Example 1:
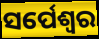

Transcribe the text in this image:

ସର୍ପେଶ୍ଵର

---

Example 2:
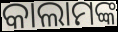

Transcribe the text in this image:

କାଲାମଙ୍କ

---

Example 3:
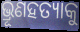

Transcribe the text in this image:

ଭ୍ରୂଣହତ୍ୟାକୁ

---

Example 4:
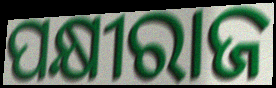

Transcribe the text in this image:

ପକ୍ଷୀରାଜ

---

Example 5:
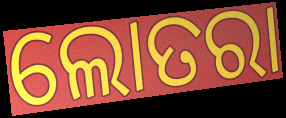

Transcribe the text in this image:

ଲୋତରା